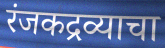
रंजकद्रव्याचा